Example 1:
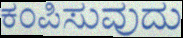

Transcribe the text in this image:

ಕಂಪಿಸುವುದು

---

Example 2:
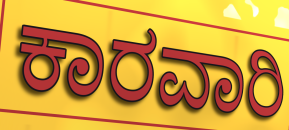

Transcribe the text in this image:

ಕಾರವಾರಿ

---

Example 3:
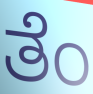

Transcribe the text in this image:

ತೆಂ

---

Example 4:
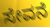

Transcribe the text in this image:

ಸೇವನೆ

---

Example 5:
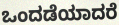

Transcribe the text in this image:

ಒಂದಡೆಯಾದರೆ